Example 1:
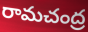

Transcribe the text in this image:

రామచంద్ర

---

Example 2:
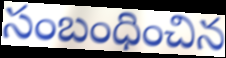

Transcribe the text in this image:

సంబంధించిన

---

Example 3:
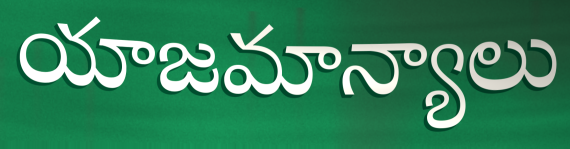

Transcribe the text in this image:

యాజమాన్యాలు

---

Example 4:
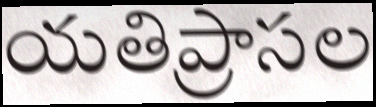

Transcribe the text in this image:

యతిప్రాసల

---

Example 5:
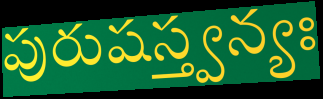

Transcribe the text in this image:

పురుషస్త్వన్యః